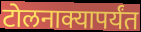
टोलनाक्यापर्यंत